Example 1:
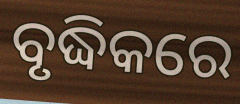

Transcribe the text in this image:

ବୃଦ୍ଧିକରେ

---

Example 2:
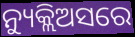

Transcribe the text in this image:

ନ୍ୟୁକ୍ଲିଅସରେ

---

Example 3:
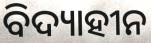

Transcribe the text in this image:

ବିଦ୍ୟାହୀନ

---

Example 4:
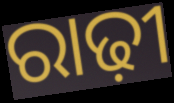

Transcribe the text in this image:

ରାଢ଼ୀ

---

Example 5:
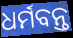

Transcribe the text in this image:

ଧର୍ମବନ୍ତ